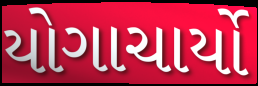
યોગાચાર્યો